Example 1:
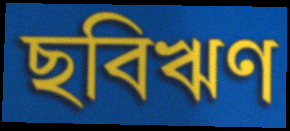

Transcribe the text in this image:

ছবিঋণ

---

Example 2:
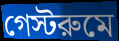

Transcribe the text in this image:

গেস্টরুমে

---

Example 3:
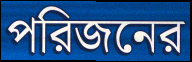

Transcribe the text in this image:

পরিজনের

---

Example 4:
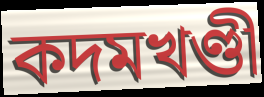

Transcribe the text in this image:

কদমখণ্ডী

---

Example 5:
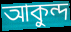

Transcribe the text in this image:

আকুন্দ